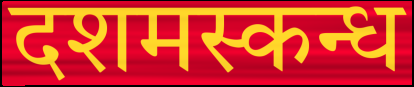
दशमस्कन्ध